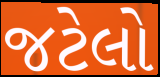
જટેલો